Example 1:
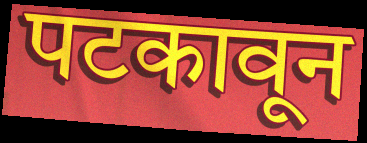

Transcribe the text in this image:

पटकावून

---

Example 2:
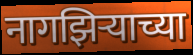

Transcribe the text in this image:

नागझिऱ्याच्या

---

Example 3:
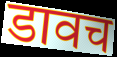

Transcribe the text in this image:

डावच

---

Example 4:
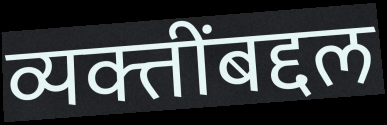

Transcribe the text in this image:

व्यक्तींबद्दल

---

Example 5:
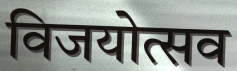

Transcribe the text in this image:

विजयोत्सव